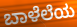
ಬಾಳೆಲೆಯ